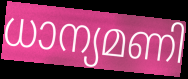
ധാന്യമണി